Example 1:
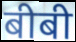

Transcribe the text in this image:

बीबी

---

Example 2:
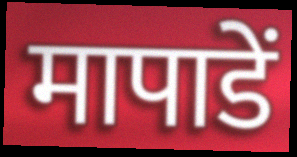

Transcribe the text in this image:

मापाडें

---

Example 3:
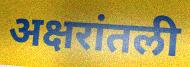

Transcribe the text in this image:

अक्षरांतली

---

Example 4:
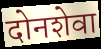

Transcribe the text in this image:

दोनशेवा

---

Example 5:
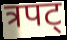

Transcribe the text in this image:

त्रपट्